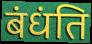
बंधंति